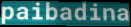
paibadina